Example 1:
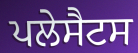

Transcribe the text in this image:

ਪਲੇਸੈਟਸ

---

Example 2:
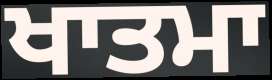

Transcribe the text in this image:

ਖਾਤਮਾ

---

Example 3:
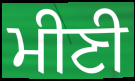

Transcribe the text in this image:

ਮੀਣੀ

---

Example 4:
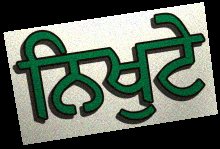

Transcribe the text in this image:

ਨਿਖੁਟੇ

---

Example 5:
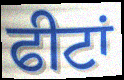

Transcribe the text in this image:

ਫੀਟਾਂ